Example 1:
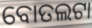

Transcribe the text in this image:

ବୋତଲଟା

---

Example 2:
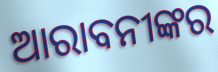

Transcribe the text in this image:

ଆରାବନୀଙ୍କର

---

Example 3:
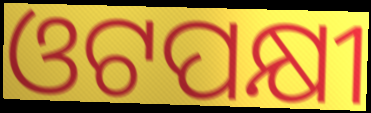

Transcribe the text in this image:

ଓଟପକ୍ଷୀ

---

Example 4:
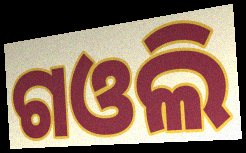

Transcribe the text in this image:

ଗଓଲି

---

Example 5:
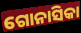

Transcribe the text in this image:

ଗୋନାସିକା